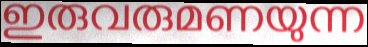
ഇരുവരുമണയുന്ന